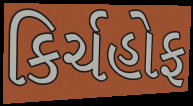
કિર્ચહોફ